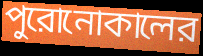
পুরোনোকালের